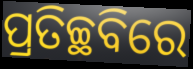
ପ୍ରତିଚ୍ଛବିରେ